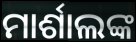
ମାର୍ଶାଲଙ୍କ